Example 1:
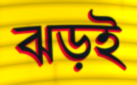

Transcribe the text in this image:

ঝড়ই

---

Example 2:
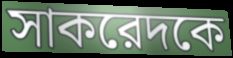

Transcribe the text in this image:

সাকরেদকে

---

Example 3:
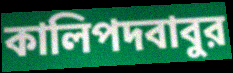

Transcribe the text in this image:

কালিপদবাবুর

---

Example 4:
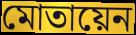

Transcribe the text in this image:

মোতায়েন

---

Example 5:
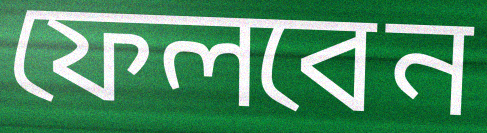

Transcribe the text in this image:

ফেলবেন